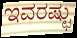
ಇವರಷ್ಟು